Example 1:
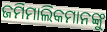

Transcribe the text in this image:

ଜମିମାଲିକମାନଙ୍କୁ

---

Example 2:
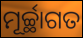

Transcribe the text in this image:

ମୂର୍ଚ୍ଛାଗତ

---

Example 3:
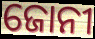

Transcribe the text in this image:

ଜୋନୀ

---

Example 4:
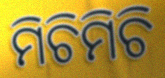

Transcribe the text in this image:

ମିଚିମିଚି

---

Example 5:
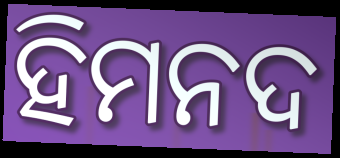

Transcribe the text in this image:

ହିମନଦ